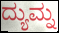
ದ್ಯುಮ್ನ